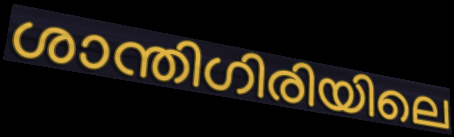
ശാന്തിഗിരിയിലെ